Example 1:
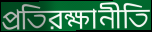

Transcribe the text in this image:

প্রতিরক্ষানীতি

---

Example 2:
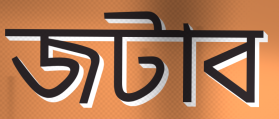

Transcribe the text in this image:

জটাব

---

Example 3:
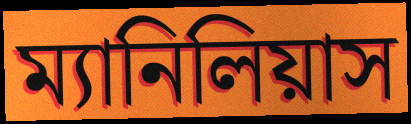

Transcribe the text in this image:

ম্যানিলিয়াস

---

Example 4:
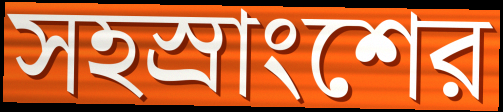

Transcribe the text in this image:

সহস্রাংশের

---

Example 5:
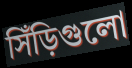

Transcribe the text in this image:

সিঁড়িগুলো